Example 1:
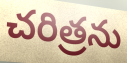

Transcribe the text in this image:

చరిత్రను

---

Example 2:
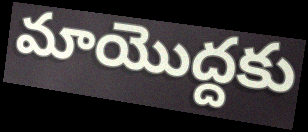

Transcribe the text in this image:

మాయొద్దకు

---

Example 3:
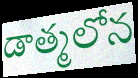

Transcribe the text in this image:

డాత్మలోన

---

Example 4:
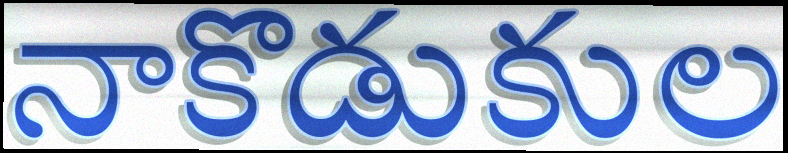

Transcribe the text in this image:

నాకొడుకుల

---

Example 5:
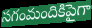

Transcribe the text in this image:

సగంమందికిపైగా